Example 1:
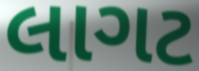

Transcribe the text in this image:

લાગટ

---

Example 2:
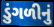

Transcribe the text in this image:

ડુંગળીનું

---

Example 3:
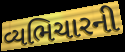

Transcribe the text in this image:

વ્યભિચારની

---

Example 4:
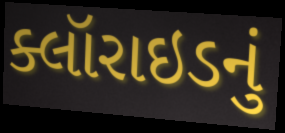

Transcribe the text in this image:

ક્લૉરાઇડનું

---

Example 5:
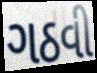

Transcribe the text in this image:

ગઠવી